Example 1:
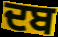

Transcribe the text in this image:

ਦਬ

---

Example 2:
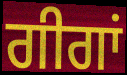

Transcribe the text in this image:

ਗੀਗਾਂ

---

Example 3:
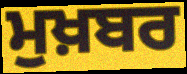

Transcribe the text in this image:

ਮੁਖ਼ਬਰ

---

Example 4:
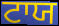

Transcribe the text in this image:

ਟਾਯ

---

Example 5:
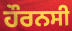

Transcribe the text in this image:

ਹੌਰਨਸੀ